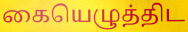
கையெழுத்திட